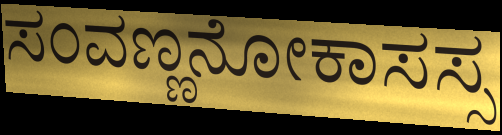
ಸಂವಣ್ಣನೋಕಾಸಸ್ಸ